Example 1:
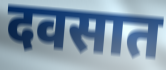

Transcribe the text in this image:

दवसात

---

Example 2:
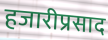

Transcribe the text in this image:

हजारीप्रसाद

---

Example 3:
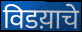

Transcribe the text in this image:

विडय़ाचे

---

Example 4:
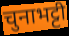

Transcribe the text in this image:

चुनाभट्टी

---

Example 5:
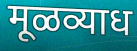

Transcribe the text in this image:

मूळव्याध